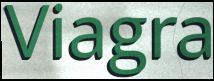
Viagra